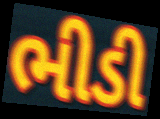
ભીડી